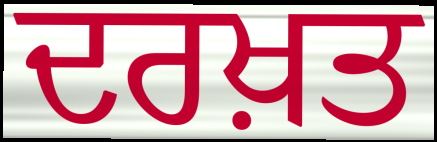
ਦਰਖ਼ਤ